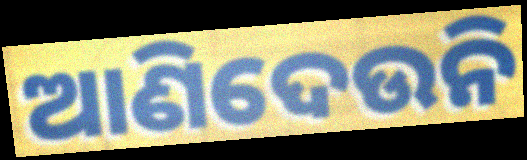
ଆଣିଦେଉନି